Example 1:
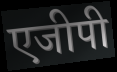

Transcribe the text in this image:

एजीपी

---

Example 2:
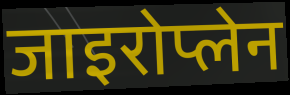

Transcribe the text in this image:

जाइरोप्लेन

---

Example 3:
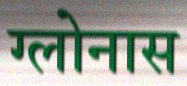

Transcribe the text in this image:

ग्लोनास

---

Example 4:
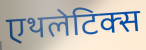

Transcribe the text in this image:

एथलेटिक्‍स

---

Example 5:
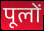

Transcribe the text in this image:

पूलों